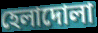
হেলাদোলা